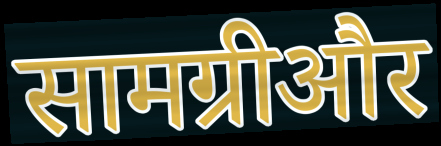
सामग्रीऔर